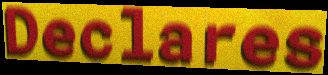
Declares